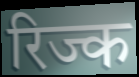
रिज्क